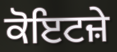
ਕੋਇਟਜ਼ੇ